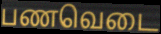
பணவெடை